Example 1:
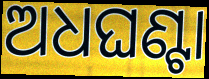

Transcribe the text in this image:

ଅଧଘଣ୍ଟା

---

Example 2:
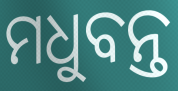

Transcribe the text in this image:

ମଧୁବନ୍ତ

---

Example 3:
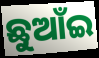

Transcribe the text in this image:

ଛୁଆଁଇ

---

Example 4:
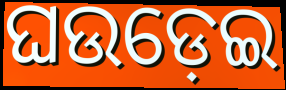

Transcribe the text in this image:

ଘଉଡ଼େଇ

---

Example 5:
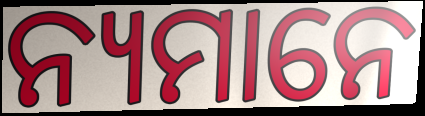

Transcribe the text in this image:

ନ୍ୟମାନେ